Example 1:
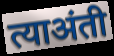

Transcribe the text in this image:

त्याअंती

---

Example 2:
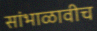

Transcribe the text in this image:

सांभाळावीच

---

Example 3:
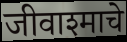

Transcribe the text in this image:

जीवाश्माचे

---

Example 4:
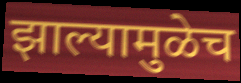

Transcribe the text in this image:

झाल्यामुळेच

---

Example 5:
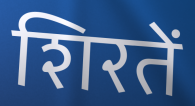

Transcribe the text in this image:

शिरतें